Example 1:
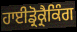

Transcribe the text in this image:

ਹਾਈਡ੍ਰੋਕ੍ਰੈਕਿੰਗ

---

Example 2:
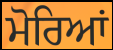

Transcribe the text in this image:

ਮੋਰਿਆਂ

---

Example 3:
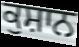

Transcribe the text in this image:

ਕੁਸ਼ਾਨ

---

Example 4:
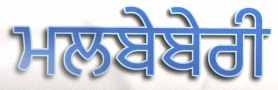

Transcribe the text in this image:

ਮਲਬੇਬੇਰੀ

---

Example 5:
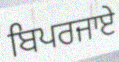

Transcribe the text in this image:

ਬਿਪਰਜਾਏ